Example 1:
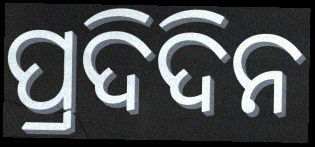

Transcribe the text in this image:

ପ୍ରଦିଦିନ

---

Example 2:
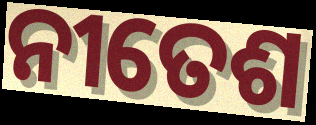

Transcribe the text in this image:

ନୀତେଶ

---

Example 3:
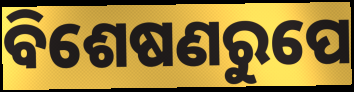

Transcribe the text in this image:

ବିଶେଷଣରୁପେ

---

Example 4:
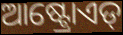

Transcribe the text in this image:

ଆଷ୍ଟ୍ରୋଏଡ୍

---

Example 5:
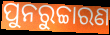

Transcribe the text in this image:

ପୁନରୁଚ୍ଚାରଣ